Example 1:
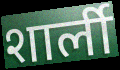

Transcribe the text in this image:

शार्ली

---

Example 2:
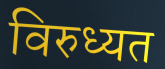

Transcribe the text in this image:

विरुध्यत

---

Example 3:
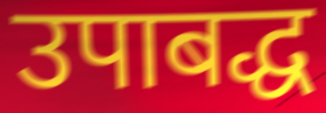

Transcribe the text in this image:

उपाबद्ध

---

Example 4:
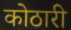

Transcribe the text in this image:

कोठारी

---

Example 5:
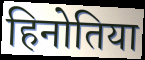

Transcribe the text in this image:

हिनोतिया